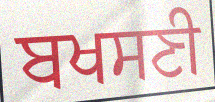
ਬਖਸਣੀ